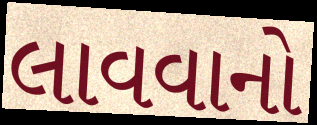
લાવવાનો